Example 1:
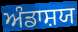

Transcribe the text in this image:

ਅੰਡਾਸ਼ਯ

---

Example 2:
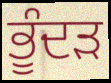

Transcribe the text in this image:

ਭੂੰਦੜ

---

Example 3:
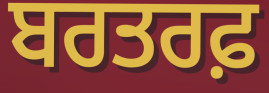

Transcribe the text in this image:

ਬਰਤਰਫ਼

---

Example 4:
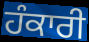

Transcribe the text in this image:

ਹੰਕਾਰੀ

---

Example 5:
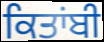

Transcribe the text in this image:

ਕਿਤਾਂਬੀ